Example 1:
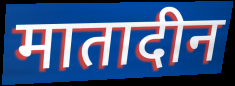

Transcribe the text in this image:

मातादीन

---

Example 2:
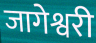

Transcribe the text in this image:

जागेश्वरी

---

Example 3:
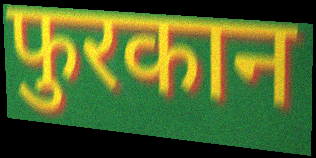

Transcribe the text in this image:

फुरकान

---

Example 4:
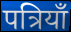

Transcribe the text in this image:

पत्रियाँ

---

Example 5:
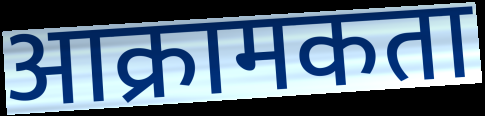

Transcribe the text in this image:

आक्रामकता